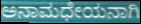
ಅನಾಮಧೇಯನಾಗಿ